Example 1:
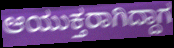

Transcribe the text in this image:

ಆಯುಕ್ತರಾಗಿದ್ದಾಗ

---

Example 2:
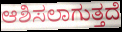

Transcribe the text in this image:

ಆಶಿಸಲಾಗುತ್ತದೆ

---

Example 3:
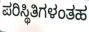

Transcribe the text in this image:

ಪರಿಸ್ಥಿತಿಗಳಂತಹ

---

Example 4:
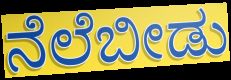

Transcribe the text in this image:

ನೆಲೆಬೀಡು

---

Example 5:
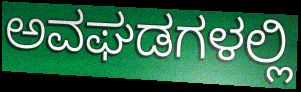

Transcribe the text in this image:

ಅವಘಡಗಳಲ್ಲಿ